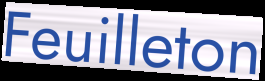
Feuilleton